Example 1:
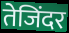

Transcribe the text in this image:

तेजिंदर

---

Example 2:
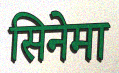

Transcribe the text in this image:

सिनेमा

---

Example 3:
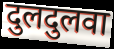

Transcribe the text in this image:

दुलदुलवा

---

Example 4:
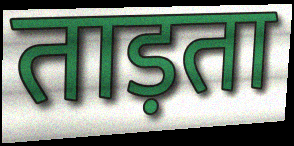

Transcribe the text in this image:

ताड़ता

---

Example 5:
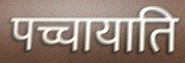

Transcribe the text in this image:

पच्चायाति